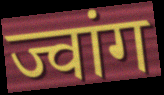
ज्वांग